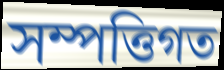
সম্পত্তিগত